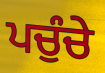
ਪਚੁੰਚੇ